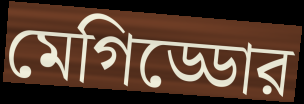
মেগিড্ডোর